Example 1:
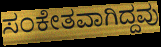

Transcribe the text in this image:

ಸಂಕೇತವಾಗಿದ್ದವು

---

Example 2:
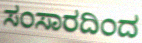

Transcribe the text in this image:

ಸಂಸಾರದಿಂದ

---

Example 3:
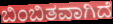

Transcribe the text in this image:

ಬಿಂಬಿತವಾಗಿದೆ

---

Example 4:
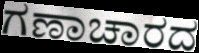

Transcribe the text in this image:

ಗಣಾಚಾರದ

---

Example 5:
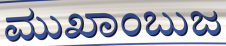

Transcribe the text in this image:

ಮುಖಾಂಬುಜ